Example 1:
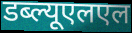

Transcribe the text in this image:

डब्ल्यूएलएल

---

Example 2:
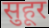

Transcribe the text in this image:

सुहूर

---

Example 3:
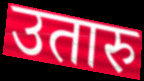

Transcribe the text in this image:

उतारु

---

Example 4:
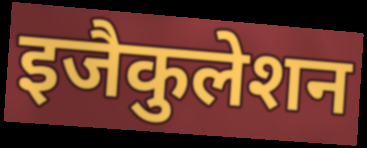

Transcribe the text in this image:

इजैकुलेशन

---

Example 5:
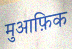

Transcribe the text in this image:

मुआफ़िक